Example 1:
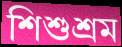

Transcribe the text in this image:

শিশুশ্রম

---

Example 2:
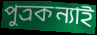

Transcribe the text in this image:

পুত্রকন্যাই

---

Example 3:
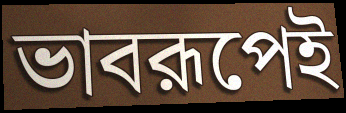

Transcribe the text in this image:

ভাবরূপেই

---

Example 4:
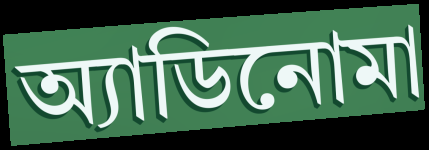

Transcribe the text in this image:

অ্যাডিনোমা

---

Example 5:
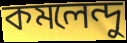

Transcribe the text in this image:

কমলেন্দু